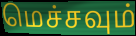
மெச்சவும்